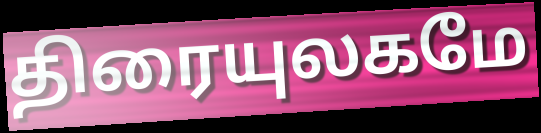
திரையுலகமே